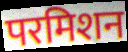
परमिशन